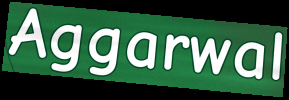
Aggarwal